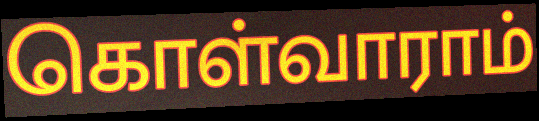
கொள்வாராம்